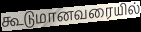
கூடுமானவரையில்